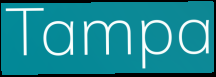
Tampa